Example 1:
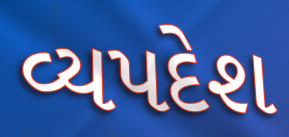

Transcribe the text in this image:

વ્યપદેશ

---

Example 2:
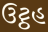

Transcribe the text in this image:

ઉટ્ઠહ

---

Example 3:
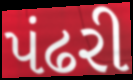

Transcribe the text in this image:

પંઢરી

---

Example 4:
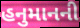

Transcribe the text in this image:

હનુમાનની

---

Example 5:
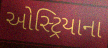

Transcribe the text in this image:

ઓસ્ટ્રિયાના